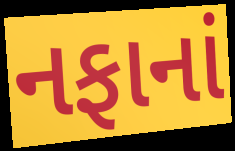
નફાનાં